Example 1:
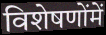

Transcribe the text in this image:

विशेषणोंमें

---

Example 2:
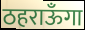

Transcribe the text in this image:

ठहराऊँगा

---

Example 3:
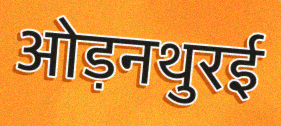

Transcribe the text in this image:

ओड़नथुरई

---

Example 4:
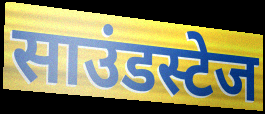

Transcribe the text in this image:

साउंडस्टेज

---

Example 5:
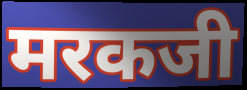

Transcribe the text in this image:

मरकजी